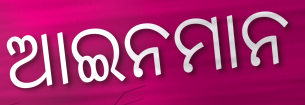
ଆଇନମାନ